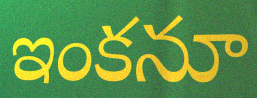
ఇంకనూ